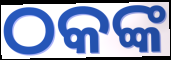
ଠକଙ୍କ